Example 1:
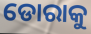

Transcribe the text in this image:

ଡୋରାକୁ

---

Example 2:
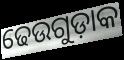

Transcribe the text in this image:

ଢେଉଗୁଡ଼ାକ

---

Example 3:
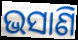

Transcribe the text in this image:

ଭସାଣି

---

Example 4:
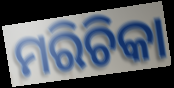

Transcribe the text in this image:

ମରିଚିକା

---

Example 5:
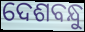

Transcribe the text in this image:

ଦେଶବନ୍ଧୁ